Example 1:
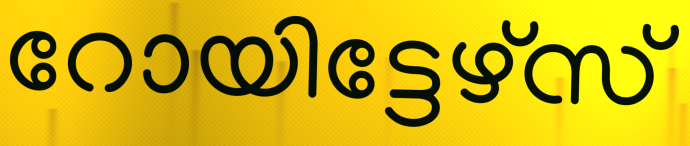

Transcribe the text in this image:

റോയിട്ടേഴ്സ്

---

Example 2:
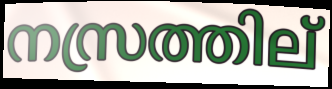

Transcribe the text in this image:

നസ്രത്തില്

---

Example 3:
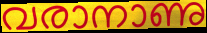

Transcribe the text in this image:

വരാനാണു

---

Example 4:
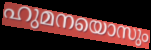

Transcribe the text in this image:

ഹുമനയൊസും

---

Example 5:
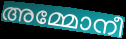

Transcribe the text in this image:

അമ്മോനീ